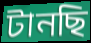
টানছি